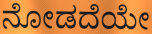
ನೋಡದೆಯೇ